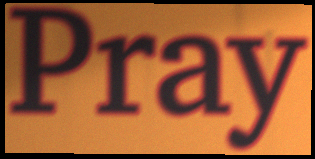
Pray